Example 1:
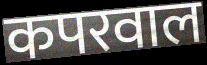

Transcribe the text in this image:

कपरवाल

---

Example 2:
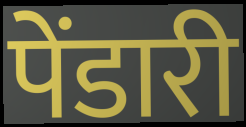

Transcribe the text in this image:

पेंडारी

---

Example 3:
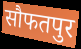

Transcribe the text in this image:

सौफतपुर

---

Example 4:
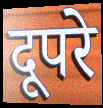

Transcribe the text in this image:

दूपरे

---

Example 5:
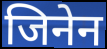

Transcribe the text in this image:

जिनेन